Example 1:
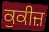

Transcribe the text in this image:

ਕੁਕੀਜ਼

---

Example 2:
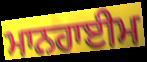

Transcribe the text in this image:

ਮਾਨਹਾਈਮ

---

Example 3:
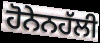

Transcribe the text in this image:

ਹੋਨੇਨਹੱਲੀ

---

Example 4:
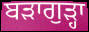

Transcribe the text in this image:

ਬੜਾਗੁੜ੍ਹਾ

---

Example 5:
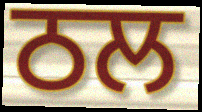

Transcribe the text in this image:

ਠਲ